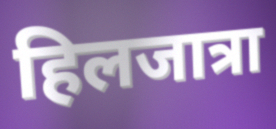
हिलजात्रा